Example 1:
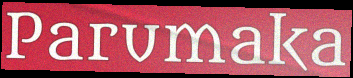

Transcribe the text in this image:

Parumaka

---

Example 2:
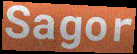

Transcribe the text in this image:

Sagor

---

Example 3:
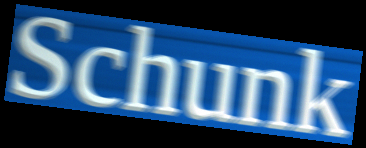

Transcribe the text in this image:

Schunk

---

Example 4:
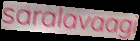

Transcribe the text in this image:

saralavaagi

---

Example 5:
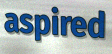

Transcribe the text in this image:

aspired